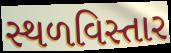
સ્થળવિસ્તાર